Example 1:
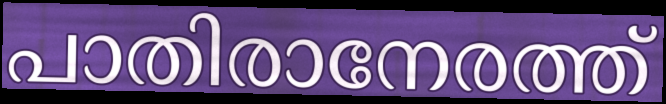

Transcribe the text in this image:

പാതിരാനേരത്ത്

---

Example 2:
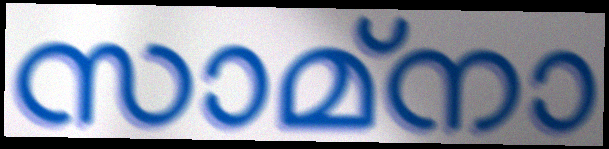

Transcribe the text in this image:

സാമ്നാ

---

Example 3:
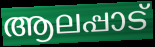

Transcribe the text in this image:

ആലപ്പാട്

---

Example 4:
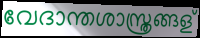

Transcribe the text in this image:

വേദാന്തശാസ്ത്രങ്ങള്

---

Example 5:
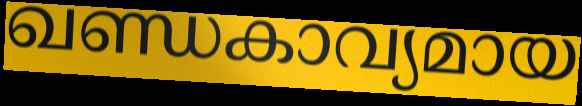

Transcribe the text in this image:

ഖണ്ഡകാവ്യമായ